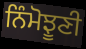
ਨਿੰਮੋਝੂਣੀ